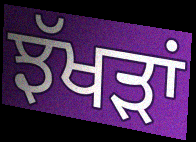
ਝੱਖੜਾਂ